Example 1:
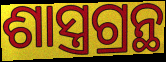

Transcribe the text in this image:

ଶାସ୍ତ୍ରଗ୍ରନ୍ଥ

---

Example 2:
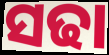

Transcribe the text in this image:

ସଢା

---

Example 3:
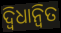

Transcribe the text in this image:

ଦ୍ଵିଧାନ୍ୱିତ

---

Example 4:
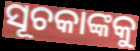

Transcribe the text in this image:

ସୂଚକାଙ୍କକୁ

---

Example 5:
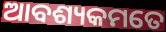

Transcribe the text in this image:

ଆବଶ୍ୟକମତେ